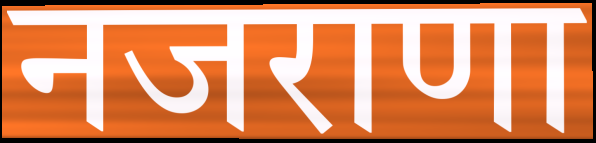
नजराणा